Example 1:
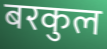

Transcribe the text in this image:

बरकुल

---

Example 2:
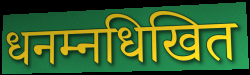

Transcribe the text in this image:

धनम्नधिखित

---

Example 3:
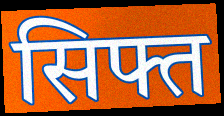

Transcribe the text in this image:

सिफ्त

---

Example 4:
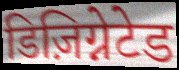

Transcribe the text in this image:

डिज़िग्नेटेड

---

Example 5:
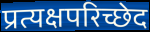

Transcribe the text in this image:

प्रत्यक्षपरिच्छेद